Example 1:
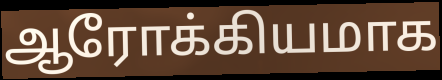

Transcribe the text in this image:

ஆரோக்கியமாக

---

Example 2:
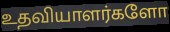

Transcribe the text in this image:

உதவியாளர்களோ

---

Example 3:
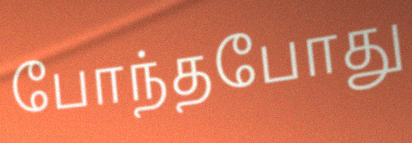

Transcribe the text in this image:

போந்தபோது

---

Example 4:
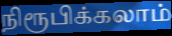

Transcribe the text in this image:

நிரூபிக்கலாம்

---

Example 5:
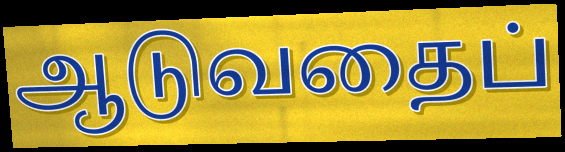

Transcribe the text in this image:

ஆடுவதைப்